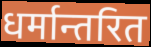
धर्मान्तरित